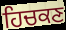
ਹਿਚਕਣ